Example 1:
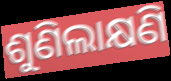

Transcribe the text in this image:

ଶୁଣିଲାକ୍ଷଣି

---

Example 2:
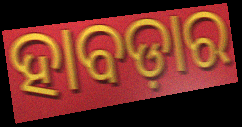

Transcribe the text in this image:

ହାବଡ଼ାର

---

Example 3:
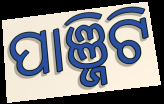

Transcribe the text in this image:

ପାଞ୍ଜିଟି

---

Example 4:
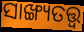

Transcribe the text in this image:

ସାଙ୍ଖ୍ୟତତ୍ତ୍ଵ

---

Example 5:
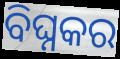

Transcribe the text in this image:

ବିଘ୍ନକର